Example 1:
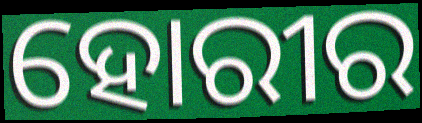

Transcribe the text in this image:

ହୋରୀର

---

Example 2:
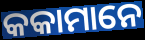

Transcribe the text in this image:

କକାମାନେ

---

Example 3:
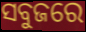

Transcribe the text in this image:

ସବୁଜରେ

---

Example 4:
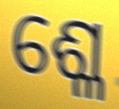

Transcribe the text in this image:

ଶ୍ଳେ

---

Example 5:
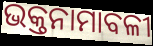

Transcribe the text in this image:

ଭକ୍ତନାମାବଳୀ